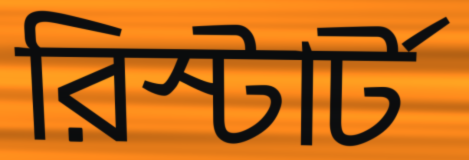
রিস্টার্ট